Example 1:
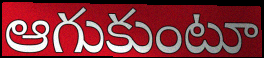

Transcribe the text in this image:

ఆగుకుంటూ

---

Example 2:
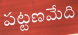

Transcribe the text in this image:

పట్టణమేది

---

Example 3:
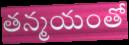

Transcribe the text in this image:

తన్మయంతో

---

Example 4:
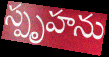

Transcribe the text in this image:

స్పృహను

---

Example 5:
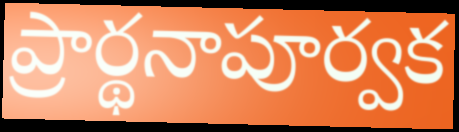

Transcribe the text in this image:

ప్రార్థనాపూర్వక